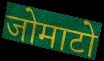
जोमाटो